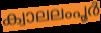
ക്വാലലംപൂർ